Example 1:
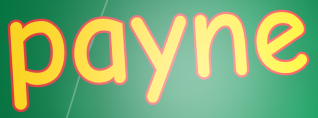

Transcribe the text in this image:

payne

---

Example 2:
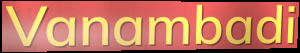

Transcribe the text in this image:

Vanambadi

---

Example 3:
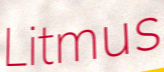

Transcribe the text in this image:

Litmus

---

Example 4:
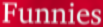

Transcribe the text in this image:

Funnies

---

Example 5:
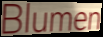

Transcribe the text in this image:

Blumen